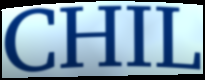
CHIL